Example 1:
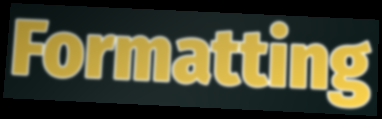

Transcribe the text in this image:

Formatting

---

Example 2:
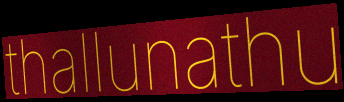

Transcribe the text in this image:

thallunathu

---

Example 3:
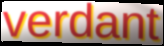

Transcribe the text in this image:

verdant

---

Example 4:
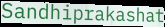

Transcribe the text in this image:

Sandhiprakashat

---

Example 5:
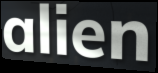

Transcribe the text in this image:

alien